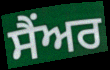
ਸੈਂਅਰ